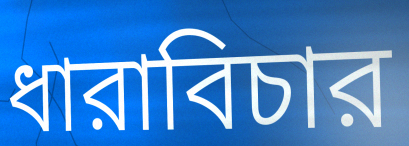
ধারাবিচার